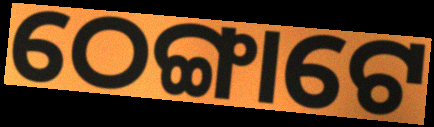
ଠେଙ୍ଗାଟେ